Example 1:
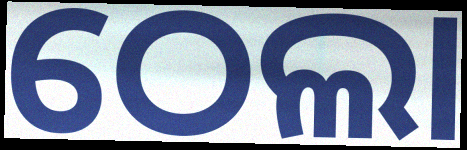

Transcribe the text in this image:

ଠେଲା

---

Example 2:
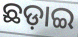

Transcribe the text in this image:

ଛଡ଼ାଇ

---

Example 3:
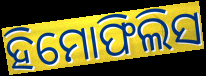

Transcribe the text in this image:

ହିମୋଫିଲିସ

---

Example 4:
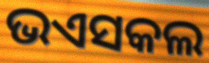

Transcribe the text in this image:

ଭଏସକଲ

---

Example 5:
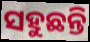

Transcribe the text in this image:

ସହୁଛନ୍ତି